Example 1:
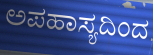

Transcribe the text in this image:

ಅಪಹಾಸ್ಯದಿಂದ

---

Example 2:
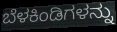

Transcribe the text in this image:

ಬೆಳಕಿಂಡಿಗಳನ್ನು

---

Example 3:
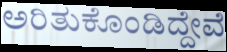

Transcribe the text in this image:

ಅರಿತುಕೊಂಡಿದ್ದೇವೆ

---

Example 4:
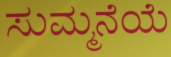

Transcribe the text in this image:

ಸುಮ್ಮನೆಯೆ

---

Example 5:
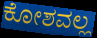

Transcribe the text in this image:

ಕೋಶವಲ್ಲ